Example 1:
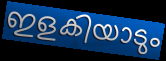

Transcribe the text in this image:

ഇളകിയാടും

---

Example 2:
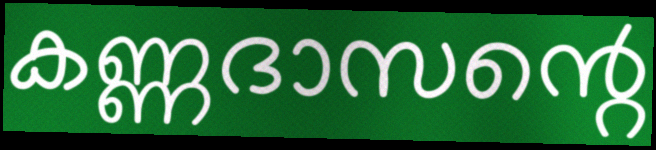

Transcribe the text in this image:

കണ്ണദാസന്റെ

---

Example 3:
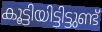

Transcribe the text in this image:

കൂട്ടിയിട്ടിട്ടുണ്ട്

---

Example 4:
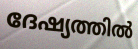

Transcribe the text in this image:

ദേഷ്യത്തിൽ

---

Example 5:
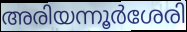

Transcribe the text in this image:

അരിയന്നൂർശേരി